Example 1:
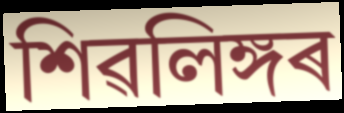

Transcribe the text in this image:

শিৱলিঙ্গৰ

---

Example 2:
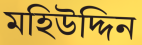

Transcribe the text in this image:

মহিউদ্দিন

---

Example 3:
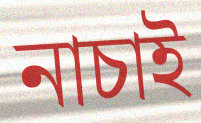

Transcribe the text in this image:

নাচাই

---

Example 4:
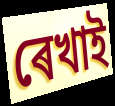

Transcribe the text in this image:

ৰেখাই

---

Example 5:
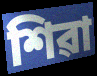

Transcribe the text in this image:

শিৱা